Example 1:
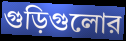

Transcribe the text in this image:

গুড়িগুলোর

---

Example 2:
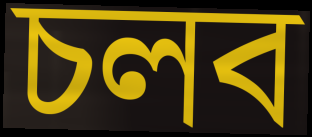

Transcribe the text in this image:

চলব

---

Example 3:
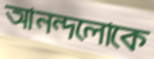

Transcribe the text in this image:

আনন্দলোকে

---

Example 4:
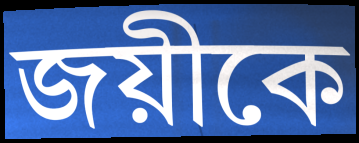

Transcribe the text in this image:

জয়ীকে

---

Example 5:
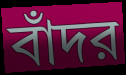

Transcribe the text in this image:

বাঁদর